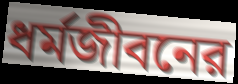
ধর্মজীবনের